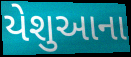
યેશુઆના